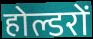
होल्‍डरों